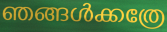
ഞങ്ങൾക്കത്രേ